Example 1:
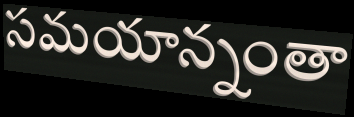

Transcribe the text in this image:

సమయాన్నంతా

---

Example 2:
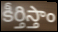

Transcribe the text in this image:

కీర్తిస్తాం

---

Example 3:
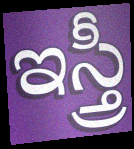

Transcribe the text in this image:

ఇస్త్రీ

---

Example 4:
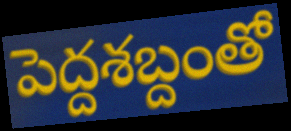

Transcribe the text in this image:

పెద్దశబ్దంతో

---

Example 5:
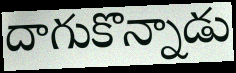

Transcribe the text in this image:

దాగుకొన్నాడు